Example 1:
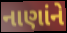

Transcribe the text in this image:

નાણાંને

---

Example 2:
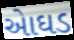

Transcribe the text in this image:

એાઘડ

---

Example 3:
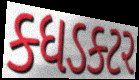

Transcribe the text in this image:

ક્ધડક્ટર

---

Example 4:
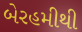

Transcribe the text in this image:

બેરહમીથી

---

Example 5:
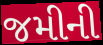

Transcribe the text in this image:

જમીની